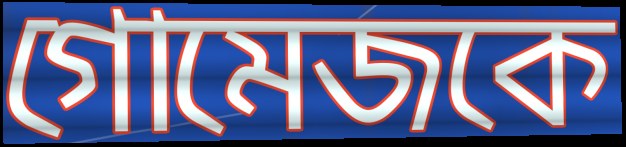
গোমেজকে